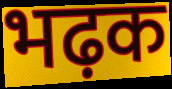
भढ़क